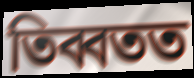
তিব্বতত